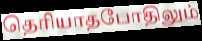
தெரியாதபோதிலும்